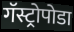
गॅस्ट्रोपोडा